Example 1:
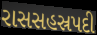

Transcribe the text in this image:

રાસસહસ્રપદી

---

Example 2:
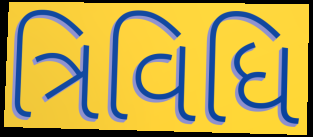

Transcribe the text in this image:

ત્રિવિધિ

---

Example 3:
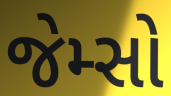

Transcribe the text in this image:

જેમ્સો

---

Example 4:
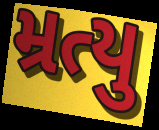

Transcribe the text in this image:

મ્રત્યુ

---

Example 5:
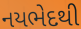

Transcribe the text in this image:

નયભેદથી